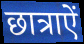
छात्राऐं